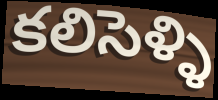
కలిసెళ్ళి